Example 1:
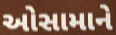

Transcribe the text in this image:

ઓસામાને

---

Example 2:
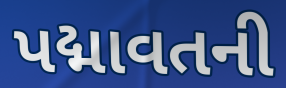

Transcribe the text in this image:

પદ્માવતની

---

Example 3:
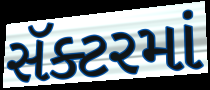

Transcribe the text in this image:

સૅક્ટરમાં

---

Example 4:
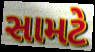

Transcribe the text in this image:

સામટે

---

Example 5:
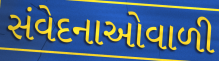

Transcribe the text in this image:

સંવેદનાઓવાળી